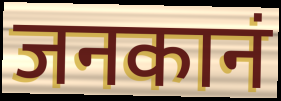
जनकानं